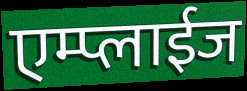
एम्प्लाईज